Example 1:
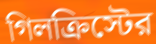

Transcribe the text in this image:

গিলক্রিস্টের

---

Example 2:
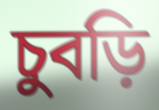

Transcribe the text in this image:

চুবড়ি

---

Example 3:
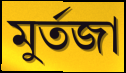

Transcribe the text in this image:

মুর্তজা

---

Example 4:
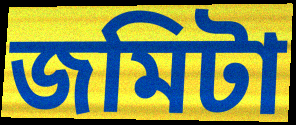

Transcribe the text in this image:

জমিটা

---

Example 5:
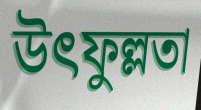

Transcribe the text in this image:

উৎফুল্লতা